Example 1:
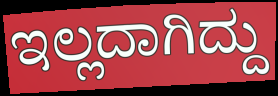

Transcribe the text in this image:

ಇಲ್ಲದಾಗಿದ್ದು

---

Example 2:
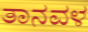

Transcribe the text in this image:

ತಾನವಳ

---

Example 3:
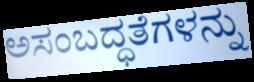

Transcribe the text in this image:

ಅಸಂಬದ್ಧತೆಗಳನ್ನು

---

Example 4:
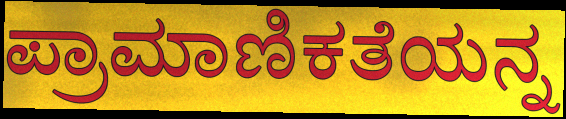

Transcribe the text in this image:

ಪ್ರಾಮಾಣಿಕತೆಯನ್ನ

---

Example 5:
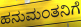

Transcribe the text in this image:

ಹನುಮಂತನಿಗೆ